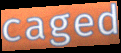
caged